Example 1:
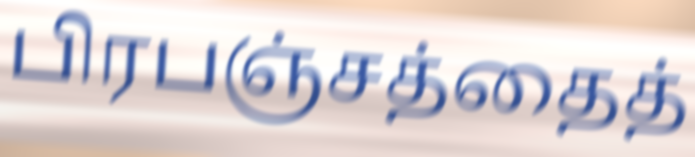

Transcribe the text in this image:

பிரபஞ்சத்தைத்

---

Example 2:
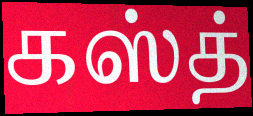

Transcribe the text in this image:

கஸ்த்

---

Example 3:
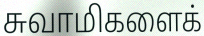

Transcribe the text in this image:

சுவாமிகளைக்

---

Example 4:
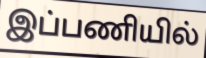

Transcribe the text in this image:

இப்பணியில்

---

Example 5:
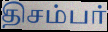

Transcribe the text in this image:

திசம்பர்